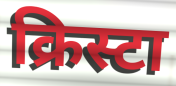
क्रिस्टा